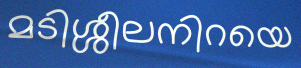
മടിശ്ശീലനിറയെ